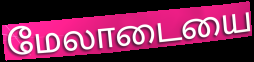
மேலாடையை